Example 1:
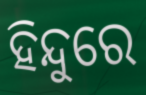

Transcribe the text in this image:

ହିନ୍ଦୁରେ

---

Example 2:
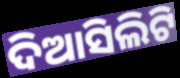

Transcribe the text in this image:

ଦିଆସିଲିଟି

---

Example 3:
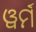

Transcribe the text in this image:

ୱର୍ମ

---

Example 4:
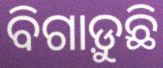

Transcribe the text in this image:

ବିଗାଡ଼ୁଛି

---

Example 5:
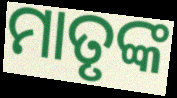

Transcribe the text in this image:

ମାତୃଙ୍କ